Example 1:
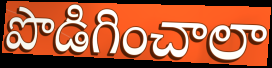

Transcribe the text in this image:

పొడిగించాలా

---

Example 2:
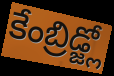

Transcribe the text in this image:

కేంబ్రిడ్జ్లో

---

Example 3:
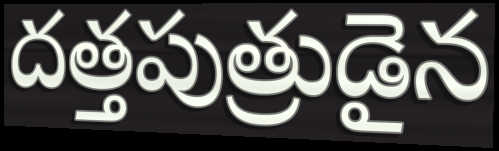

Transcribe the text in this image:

దత్తపుత్రుడైన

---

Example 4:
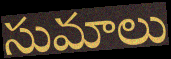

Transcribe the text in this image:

సుమాలు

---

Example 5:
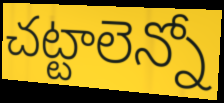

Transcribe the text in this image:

చట్టాలెన్నో